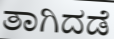
ತಾಗಿದಡೆ